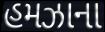
હમઝાના